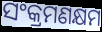
ସଂକ୍ରମଣକ୍ଷମ